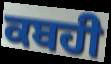
ਕਬਹੀ